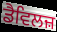
ਡੈਵਿਲਜ਼